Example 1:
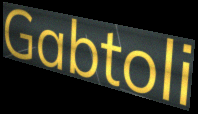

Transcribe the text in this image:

Gabtoli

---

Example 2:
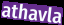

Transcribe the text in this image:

athavla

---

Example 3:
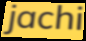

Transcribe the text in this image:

jachi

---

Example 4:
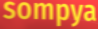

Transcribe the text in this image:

sompya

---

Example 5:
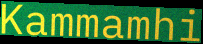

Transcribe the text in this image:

Kammamhi